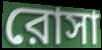
রোসা